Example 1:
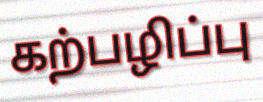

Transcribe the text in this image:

கற்பழிப்பு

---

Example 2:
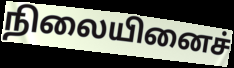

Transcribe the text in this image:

நிலையினைச்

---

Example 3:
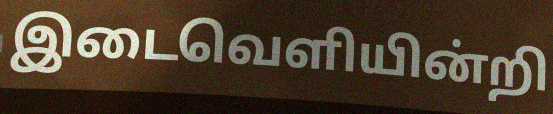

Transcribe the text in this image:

இடைவெளியின்றி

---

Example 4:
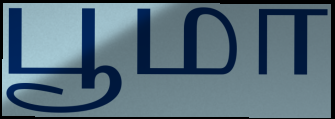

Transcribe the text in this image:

பூமா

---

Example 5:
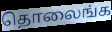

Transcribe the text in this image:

தொலைங்க